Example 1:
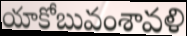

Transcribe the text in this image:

యాకోబువంశావళి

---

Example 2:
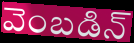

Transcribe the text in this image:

వెంబడిన్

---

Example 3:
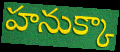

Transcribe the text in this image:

హనుక్కా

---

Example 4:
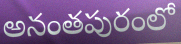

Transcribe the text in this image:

అనంతపురంలో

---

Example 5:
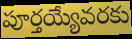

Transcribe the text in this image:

పూర్తయ్యేవరకు